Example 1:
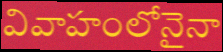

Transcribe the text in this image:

వివాహంలోనైనా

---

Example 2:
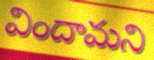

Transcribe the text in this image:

విందామని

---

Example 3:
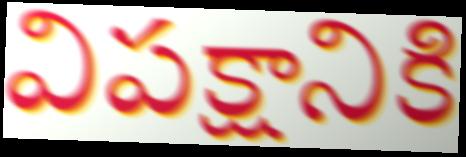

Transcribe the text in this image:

విపక్షానికి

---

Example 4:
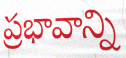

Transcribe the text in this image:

ప్రభావాన్ని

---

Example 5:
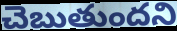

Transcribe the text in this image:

చెబుతుందని